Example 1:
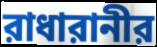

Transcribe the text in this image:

রাধারানীর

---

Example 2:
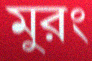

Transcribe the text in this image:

মুরং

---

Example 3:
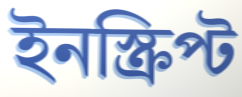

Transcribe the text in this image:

ইনস্ক্রিপ্ট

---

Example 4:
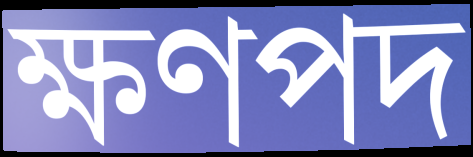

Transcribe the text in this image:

ক্ষণপদ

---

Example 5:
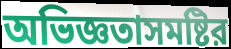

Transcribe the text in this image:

অভিজ্ঞতাসমষ্টির